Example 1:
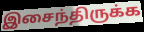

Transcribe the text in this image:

இசைந்திருக்க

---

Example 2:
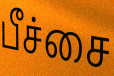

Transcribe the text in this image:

பீச்சை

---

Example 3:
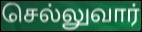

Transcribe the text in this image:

செல்லுவார்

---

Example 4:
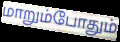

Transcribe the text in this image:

மாறும்போதும்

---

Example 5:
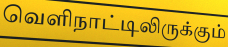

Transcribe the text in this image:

வெளிநாட்டிலிருக்கும்